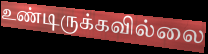
உண்டிருக்கவில்லை